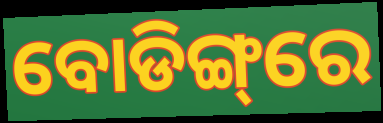
ବୋଡିଙ୍ଗ୍‌ରେ